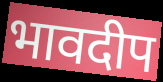
भावदीप